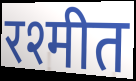
रश्मीत